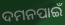
ଦମନପାଇଁ